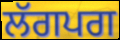
ਲੱਗਪਗ